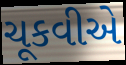
ચૂકવીએ